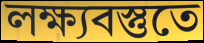
লক্ষ্যবস্তুতে